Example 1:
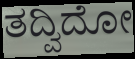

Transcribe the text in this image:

ತದ್ವಿದೋ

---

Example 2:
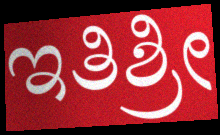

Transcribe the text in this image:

ಇತಿಶ್ರೀ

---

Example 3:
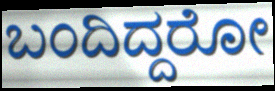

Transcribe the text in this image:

ಬಂದಿದ್ದರೋ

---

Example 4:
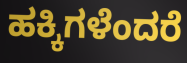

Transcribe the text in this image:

ಹಕ್ಕಿಗಳೆಂದರೆ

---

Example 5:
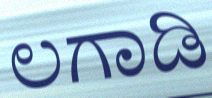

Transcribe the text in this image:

ಲಗಾಡಿ